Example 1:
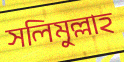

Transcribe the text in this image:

সলিমুল্লাহ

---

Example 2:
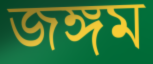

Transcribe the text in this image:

জঙ্গম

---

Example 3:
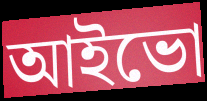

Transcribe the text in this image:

আইভো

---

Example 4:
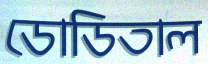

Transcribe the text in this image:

ডোডিতাল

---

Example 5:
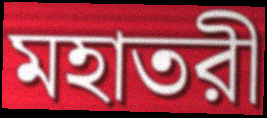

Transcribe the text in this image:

মহাতরী